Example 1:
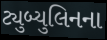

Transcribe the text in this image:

ટ્યુબ્યુલિનના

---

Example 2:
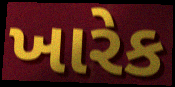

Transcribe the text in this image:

ખારેક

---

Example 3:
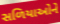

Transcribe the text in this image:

સળિયાઓને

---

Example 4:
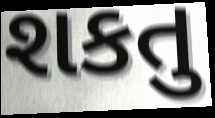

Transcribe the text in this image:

શકતુ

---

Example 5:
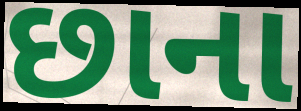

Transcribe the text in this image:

છાના